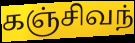
கஞ்சிவந்